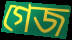
গেজ